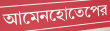
আমেনহোতেপের